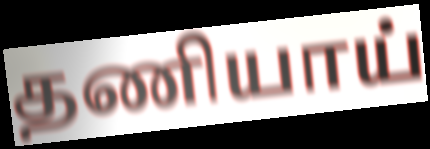
தணியாய்